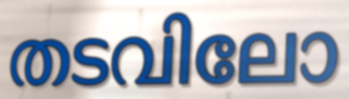
തടവിലോ